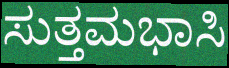
ಸುತ್ತಮಭಾಸಿ